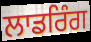
ਲਾਡਰਿੰਗ